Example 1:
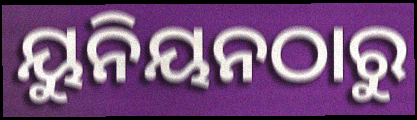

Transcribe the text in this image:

ୟୁନିୟନଠାରୁ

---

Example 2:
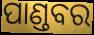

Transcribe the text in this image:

ପାଣ୍ଡବର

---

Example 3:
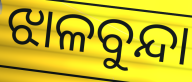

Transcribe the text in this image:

ଝାଳବୁନ୍ଦା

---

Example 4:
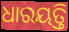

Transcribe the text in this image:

ଧାରୟତ୍ତି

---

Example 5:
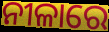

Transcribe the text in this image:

ନୀଳାରେ